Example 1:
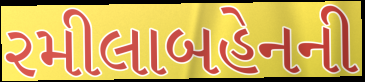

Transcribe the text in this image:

રમીલાબહેનની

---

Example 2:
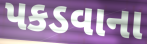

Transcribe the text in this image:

પકડવાના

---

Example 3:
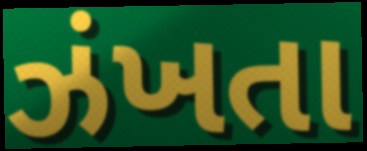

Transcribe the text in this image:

ઝંખતા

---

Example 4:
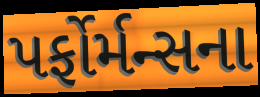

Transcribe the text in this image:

પર્ફોર્મન્સના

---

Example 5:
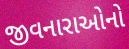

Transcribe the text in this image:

જીવનારાઓનો